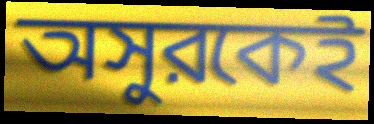
অসুরকেই